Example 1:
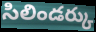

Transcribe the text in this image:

సిలిండర్కు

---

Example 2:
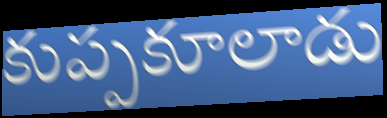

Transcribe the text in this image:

కుప్పకూలాడు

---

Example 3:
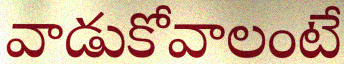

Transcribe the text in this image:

వాడుకోవాలంటే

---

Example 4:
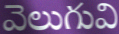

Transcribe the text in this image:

వెలుగువి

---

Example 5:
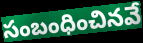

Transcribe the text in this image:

సంబంధించినవే